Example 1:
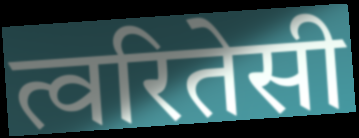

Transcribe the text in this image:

त्वरितेसी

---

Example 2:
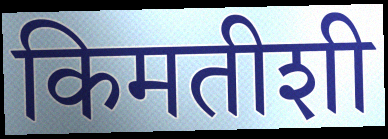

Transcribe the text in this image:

किमतीशी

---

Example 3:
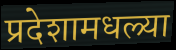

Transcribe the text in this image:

प्रदेशामधल्या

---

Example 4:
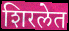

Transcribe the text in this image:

शिरलेत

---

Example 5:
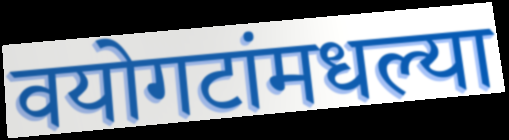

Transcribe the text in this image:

वयोगटांमधल्या